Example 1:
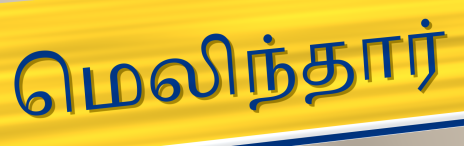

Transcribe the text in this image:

மெலிந்தார்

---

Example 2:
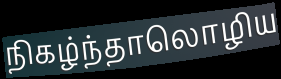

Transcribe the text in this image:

நிகழ்ந்தாலொழிய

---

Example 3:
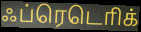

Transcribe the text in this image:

ஃப்ரெடெரிக்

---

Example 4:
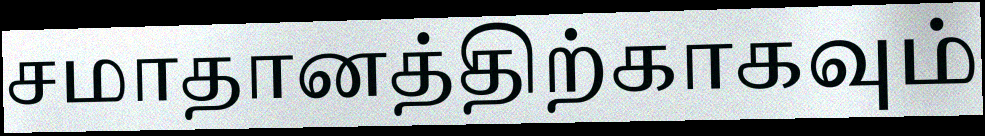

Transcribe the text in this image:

சமாதானத்திற்காகவும்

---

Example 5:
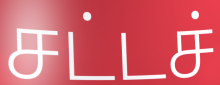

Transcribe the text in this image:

சட்டச்